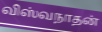
விஸ்வநாதன்